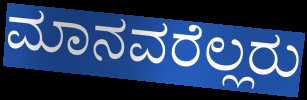
ಮಾನವರೆಲ್ಲರು